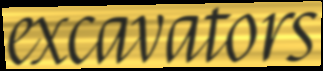
excavators